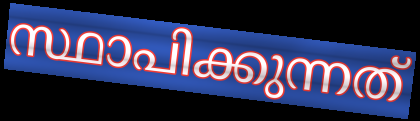
സ്ഥാപിക്കുന്നത്